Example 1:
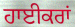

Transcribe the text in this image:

ਹਾਈਕਰਾਂ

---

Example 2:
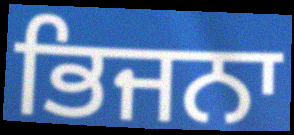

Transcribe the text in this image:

ਭਿਜਨਾ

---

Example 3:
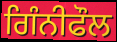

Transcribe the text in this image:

ਗਿੰਨੀਫੌਲ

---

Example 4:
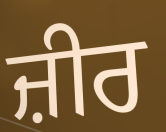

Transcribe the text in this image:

ਜ਼ੀਰ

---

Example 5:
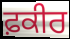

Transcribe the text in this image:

ਫ਼ਕੀਰ